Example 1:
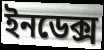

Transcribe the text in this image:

ইনডেক্স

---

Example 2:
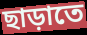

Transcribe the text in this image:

ছাড়াতে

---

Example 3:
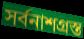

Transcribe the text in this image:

সর্বনাশগ্রস্ত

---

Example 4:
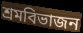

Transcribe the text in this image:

শ্রমবিভাজন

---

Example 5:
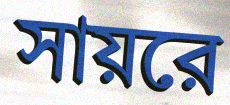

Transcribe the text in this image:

সায়রে